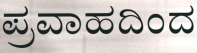
ಪ್ರವಾಹದಿಂದ